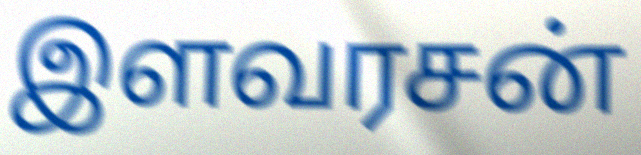
இளவரசன்